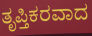
ತೃಪ್ತಿಕರವಾದ